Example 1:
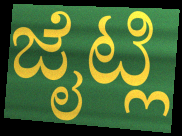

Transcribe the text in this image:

ಜೈಟ್ಲಿ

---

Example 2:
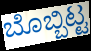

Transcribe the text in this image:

ಬೊಬ್ಬಿಟ್ಟ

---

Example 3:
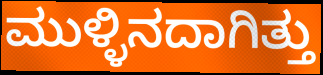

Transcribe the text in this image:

ಮುಳ್ಳಿನದಾಗಿತ್ತು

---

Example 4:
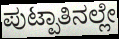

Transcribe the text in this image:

ಪುಟ್ಪಾತಿನಲ್ಲೇ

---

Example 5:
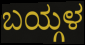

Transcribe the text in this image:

ಬಯ್ಗಳ